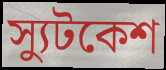
স্যুটকেশ